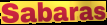
Sabaras